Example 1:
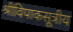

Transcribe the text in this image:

श्रीविपाकसूत्रीय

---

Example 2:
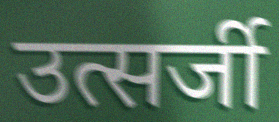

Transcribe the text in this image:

उत्सर्जी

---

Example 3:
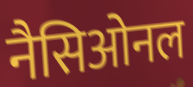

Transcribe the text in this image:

नैसिओनल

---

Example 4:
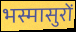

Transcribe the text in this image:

भस्मासुरों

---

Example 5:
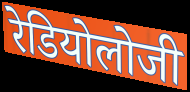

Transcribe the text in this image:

रेडियोलोजी